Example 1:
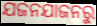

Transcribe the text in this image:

ଯଜନଯାଜନରୁ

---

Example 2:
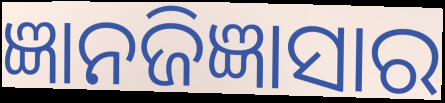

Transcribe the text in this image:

ଜ୍ଞାନଜିଜ୍ଞାସାର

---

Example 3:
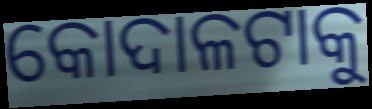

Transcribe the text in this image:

କୋଦାଳଟାକୁ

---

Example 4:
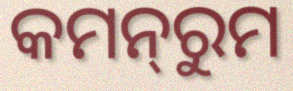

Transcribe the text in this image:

କମନ୍‌ରୁମ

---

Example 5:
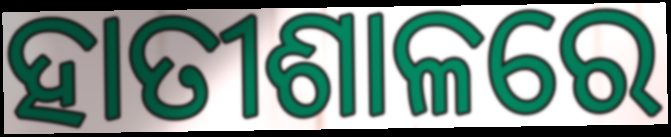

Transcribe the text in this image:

ହାତୀଶାଳରେ